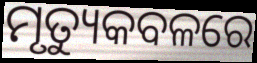
ମୃତ୍ୟୁକବଳରେ